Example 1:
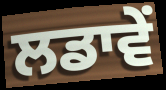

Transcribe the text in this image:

ਲਡਾਵੇਂ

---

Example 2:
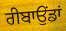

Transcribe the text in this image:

ਰੀਬਾਉਂਡਾਂ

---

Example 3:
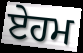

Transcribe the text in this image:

ਏਹਮ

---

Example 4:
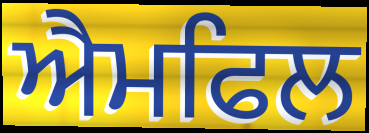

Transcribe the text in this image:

ਐਮਫਿਲ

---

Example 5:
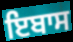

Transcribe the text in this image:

ਇਬਾਸ